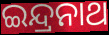
ଇନ୍ଦ୍ରନାଥ